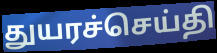
துயரச்செய்தி